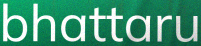
bhattaru